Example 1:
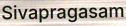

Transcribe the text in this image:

Sivapragasam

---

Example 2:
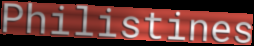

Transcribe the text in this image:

Philistines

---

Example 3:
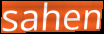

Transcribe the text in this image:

sahen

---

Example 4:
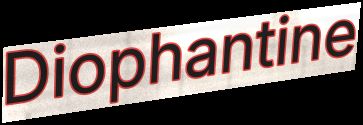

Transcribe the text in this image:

Diophantine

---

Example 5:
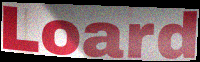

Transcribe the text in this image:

Loard